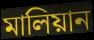
মালিয়ান